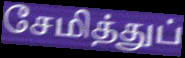
சேமித்துப்